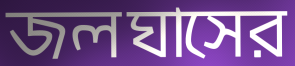
জলঘাসের